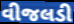
વીજલડી